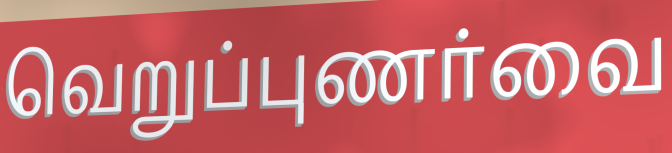
வெறுப்புணர்வை